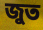
জুত